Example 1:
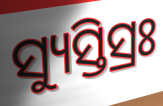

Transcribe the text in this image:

ସ୍ୟୁସ୍ତିସ୍ରଃ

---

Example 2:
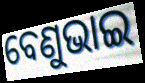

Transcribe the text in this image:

ବେଣୁଭାଇ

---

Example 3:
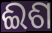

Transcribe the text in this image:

ଈଶ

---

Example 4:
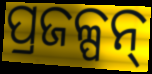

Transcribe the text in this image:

ପ୍ରଜଳ୍ପନ୍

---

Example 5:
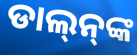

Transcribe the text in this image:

ଡାଲ୍‌ନ୍‌ଙ୍କ